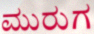
ಮುರುಗ